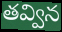
తవ్విన